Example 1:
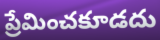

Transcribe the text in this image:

ప్రేమించకూడదు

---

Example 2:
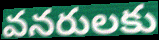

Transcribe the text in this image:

వనరులకు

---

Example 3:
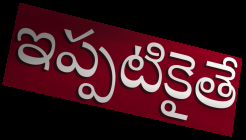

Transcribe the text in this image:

ఇప్పటికైతే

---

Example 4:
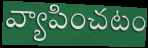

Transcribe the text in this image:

వ్యాపించటం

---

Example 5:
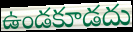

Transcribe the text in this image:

ఉండకూడదు